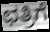
ಛತ್ರಿಗೆ